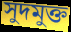
সুদমুক্ত